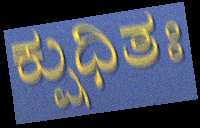
ಕ್ಷುಧಿತಃ